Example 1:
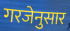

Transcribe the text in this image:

गरजेनुसार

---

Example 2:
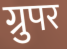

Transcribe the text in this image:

ग्रुपर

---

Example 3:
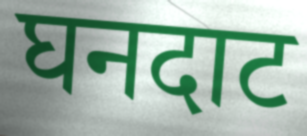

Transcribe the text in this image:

घनदाट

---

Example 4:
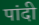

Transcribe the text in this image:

पांदी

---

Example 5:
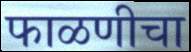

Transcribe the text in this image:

फाळणीचा